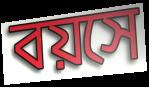
বয়সে